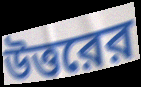
উত্তরের